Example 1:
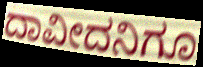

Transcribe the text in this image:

ದಾವೀದನಿಗೂ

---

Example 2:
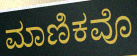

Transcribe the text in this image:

ಮಾಣಿಕವೊ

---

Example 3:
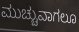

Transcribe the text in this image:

ಮುಚ್ಚುವಾಗಲೂ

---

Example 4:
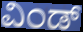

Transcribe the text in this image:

ವಿಂಡ್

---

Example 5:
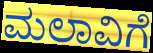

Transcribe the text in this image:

ಮಲಾವಿಗೆ